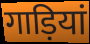
गाड़ियां